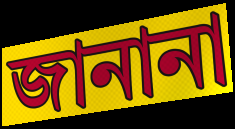
জানানা